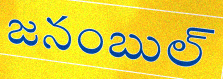
జనంబుల్